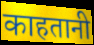
काहतानी